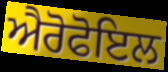
ਐਰੋਫੋਇਲ